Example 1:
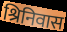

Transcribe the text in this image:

श्रिनिवास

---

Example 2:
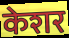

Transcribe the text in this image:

केशर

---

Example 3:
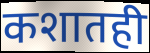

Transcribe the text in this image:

कशातही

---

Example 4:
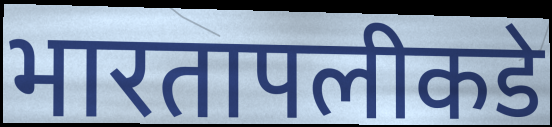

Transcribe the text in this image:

भारतापलीकडे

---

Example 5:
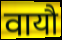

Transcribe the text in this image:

वायौ